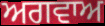
ਅਗਵਾਅ